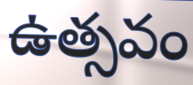
ఉత్సవం